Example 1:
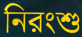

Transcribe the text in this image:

নিরংশু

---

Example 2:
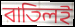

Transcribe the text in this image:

বাতিলই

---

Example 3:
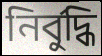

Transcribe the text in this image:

নির্বুদ্ধি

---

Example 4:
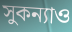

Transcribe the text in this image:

সুকন্যাও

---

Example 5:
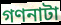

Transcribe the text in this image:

গণনাটা